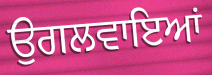
ਉਗਲਵਾਇਆਂ